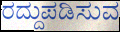
ರದ್ದುಪಡಿಸುವ